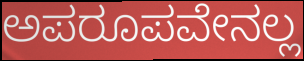
ಅಪರೂಪವೇನಲ್ಲ